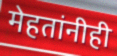
मेहतांनीही